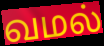
வமல்